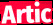
Artic